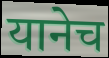
यानेच